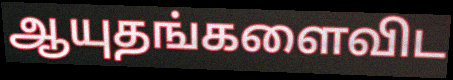
ஆயுதங்களைவிட